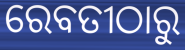
ରେବତୀଠାରୁ